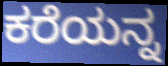
ಕರೆಯನ್ನ